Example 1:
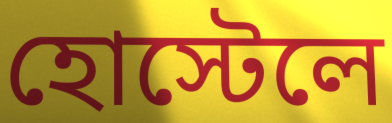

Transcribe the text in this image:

হোস্টেলে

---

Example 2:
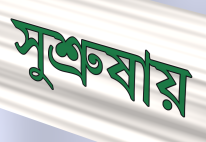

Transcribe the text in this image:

সুশ্রুষায়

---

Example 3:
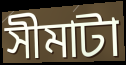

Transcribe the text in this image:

সীমাটা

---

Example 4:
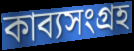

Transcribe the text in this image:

কাব্যসংগ্রহ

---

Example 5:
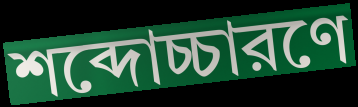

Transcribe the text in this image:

শব্দোচ্চারণে